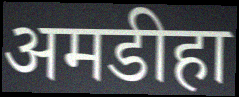
अमडीहा